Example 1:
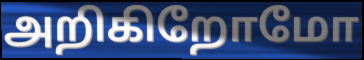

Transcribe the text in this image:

அறிகிறோமோ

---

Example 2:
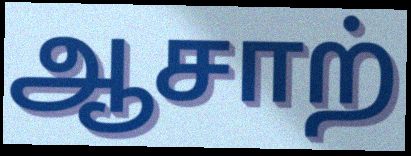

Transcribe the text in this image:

ஆசாற்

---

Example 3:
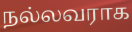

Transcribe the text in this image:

நல்லவராக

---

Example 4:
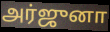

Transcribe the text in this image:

அர்ஜுனா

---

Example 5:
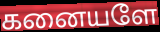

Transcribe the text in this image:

கனையளே